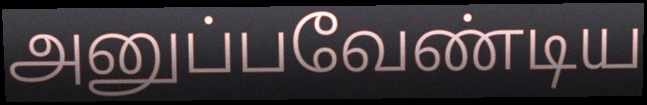
அனுப்பவேண்டிய